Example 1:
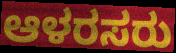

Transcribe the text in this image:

ಆಳರಸರು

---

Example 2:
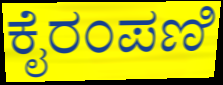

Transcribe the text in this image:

ಕೈರಂಪಣಿ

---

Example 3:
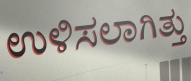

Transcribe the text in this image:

ಉಳಿಸಲಾಗಿತ್ತು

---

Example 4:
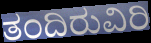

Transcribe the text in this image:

ತಂದಿರುವಿರಿ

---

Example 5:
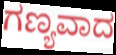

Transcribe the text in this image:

ಗಣ್ಯವಾದ